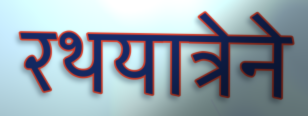
रथयात्रेने